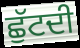
ਛੁੱਟਦੀ